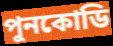
পুনকোডি